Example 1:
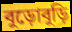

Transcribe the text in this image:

বুড়োবুড়ি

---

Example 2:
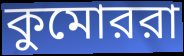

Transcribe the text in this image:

কুমোররা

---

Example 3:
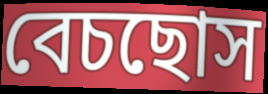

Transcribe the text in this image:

বেচছোস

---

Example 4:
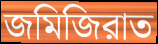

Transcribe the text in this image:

জমিজিরাত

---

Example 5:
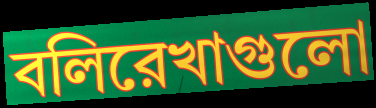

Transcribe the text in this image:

বলিরেখাগুলো